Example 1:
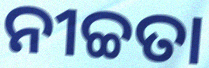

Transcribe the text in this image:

ନୀଚ୍ଚତା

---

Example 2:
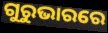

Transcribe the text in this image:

ଗୁରୁଭାରରେ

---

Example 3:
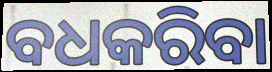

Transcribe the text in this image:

ବଧକରିବା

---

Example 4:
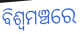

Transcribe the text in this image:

ବିଶ୍ୱମଞ୍ଚରେ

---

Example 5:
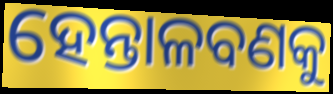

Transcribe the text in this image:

ହେନ୍ତାଳବଣକୁ